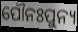
ପୌନଃପୁନ୍ୟ